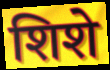
शिशे